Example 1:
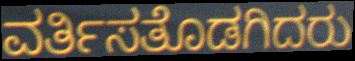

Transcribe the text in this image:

ವರ್ತಿಸತೊಡಗಿದರು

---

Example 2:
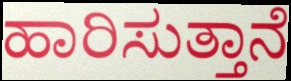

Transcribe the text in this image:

ಹಾರಿಸುತ್ತಾನೆ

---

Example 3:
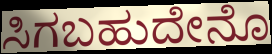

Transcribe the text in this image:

ಸಿಗಬಹುದೇನೊ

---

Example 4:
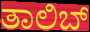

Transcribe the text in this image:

ತಾಲಿಬ್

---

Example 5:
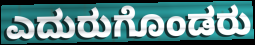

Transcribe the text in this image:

ಎದುರುಗೊಂಡರು